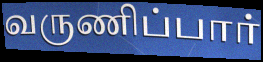
வருணிப்பார்